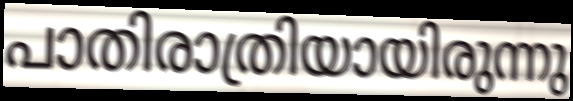
പാതിരാത്രിയായിരുന്നു